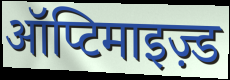
ऑप्टिमाइज़्ड